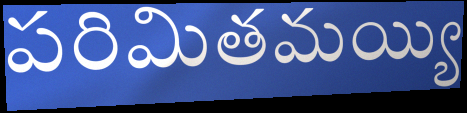
పరిమితమయ్యి